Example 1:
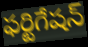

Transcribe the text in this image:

ఫర్టిగేషన్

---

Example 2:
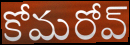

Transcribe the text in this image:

కోమరోవ్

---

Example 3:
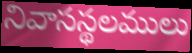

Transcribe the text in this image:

నివాసస్థలములు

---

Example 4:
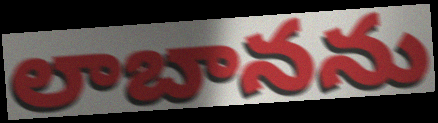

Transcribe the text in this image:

లాబానను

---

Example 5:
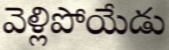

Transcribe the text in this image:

వెళ్లిపోయేడు